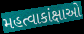
મહત્વાકાંક્ષાઓ